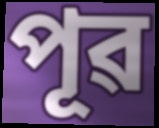
পূৱ